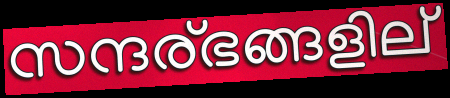
സന്ദര്ഭങ്ങളില്